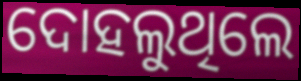
ଦୋହଲୁଥିଲେ